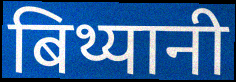
बिथ्यानी